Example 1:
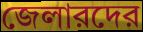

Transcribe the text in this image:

জেলারদের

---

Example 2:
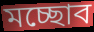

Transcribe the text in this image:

মচ্ছোব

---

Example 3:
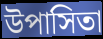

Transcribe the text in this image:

উপাসিতা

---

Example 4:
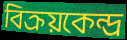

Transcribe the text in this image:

বিক্রয়কেন্দ্র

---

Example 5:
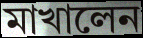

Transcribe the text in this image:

মাখালেন